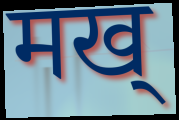
मख्